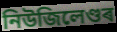
নিউজিলেণ্ডৰ